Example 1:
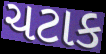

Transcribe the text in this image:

ચટાક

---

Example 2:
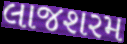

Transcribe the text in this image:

લાજશરમ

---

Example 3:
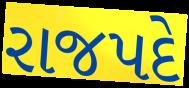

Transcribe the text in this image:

રાજપદે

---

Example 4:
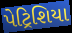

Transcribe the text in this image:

પેટ્રિશિયા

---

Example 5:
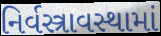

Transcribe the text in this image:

નિર્વસ્ત્રાવસ્થામાં